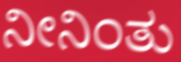
ನೀನಿಂತು